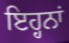
ਇਹ੍ਹਨਾਂ